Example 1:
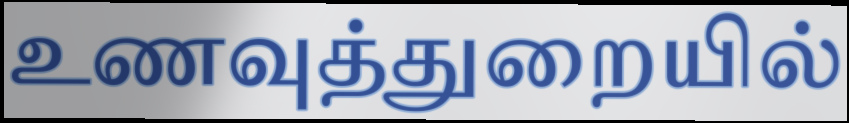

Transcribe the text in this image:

உணவுத்துறையில்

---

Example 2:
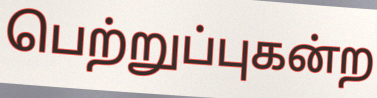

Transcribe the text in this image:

பெற்றுப்புகன்ற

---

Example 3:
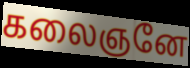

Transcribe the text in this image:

கலைஞனே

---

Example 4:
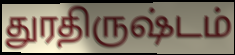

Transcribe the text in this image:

துரதிருஷ்டம்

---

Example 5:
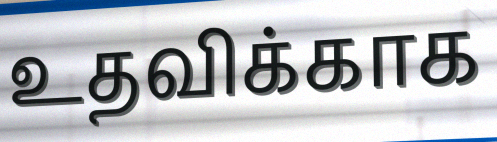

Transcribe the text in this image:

உதவிக்காக